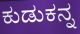
ಕುಡುಕನ್ನ